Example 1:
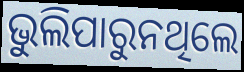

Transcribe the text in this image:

ଭୁଲିପାରୁନଥିଲେ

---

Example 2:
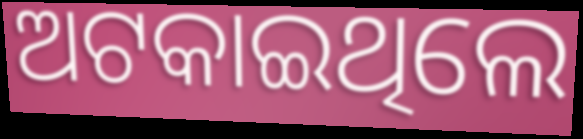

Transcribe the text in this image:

ଅଟକାଇଥିଲେ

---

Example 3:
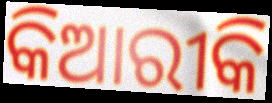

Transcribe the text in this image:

କିଆରୀକି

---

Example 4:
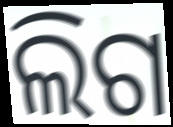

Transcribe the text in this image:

ଲିଗ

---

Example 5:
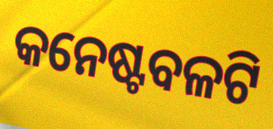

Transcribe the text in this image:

କନେଷ୍ଟବଳଟି